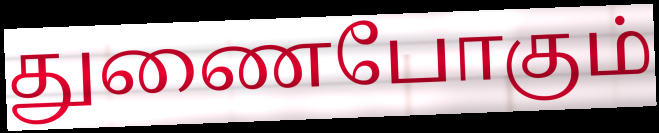
துணைபோகும்